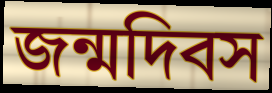
জন্মদিবস